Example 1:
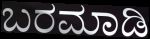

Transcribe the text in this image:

ಬರಮಾಡಿ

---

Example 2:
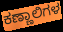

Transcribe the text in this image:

ಕಣ್ಣಾಲಿಗಳ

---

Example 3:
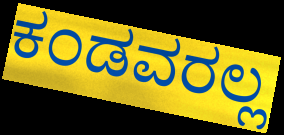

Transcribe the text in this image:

ಕಂಡವರಲ್ಲ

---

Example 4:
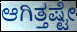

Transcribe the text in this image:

ಆಗಿತ್ತಷ್ಟೇ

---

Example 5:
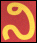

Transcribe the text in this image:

ನಿ